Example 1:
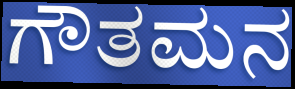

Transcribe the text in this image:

ಗೌತಮನ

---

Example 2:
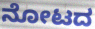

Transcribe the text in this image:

ನೋಟದ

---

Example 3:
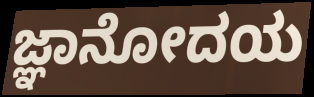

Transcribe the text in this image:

ಜ್ಞಾನೋದಯ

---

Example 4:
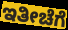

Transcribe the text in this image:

ಇತೀಚೆಗೆ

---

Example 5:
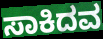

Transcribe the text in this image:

ಸಾಕಿದವ